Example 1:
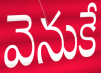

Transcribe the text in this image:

వెనుకే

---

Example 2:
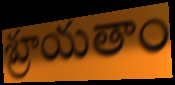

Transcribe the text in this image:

శ్రూయతాం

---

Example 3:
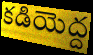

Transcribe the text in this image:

కడియెద్ద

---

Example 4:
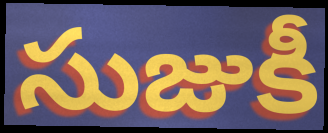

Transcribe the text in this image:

సుజుకీ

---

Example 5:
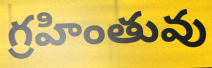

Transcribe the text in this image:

గ్రహింతువు